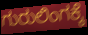
ಗುರುಲಿಂಗಕ್ಕೆ